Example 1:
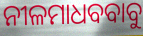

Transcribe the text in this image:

ନୀଳମାଧବବାବୁ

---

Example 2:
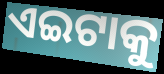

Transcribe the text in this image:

ଏଇଟାକୁ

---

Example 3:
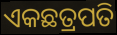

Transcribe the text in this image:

ଏକଛତ୍ରପତି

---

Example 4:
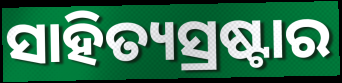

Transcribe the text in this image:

ସାହିତ୍ୟସ୍ରଷ୍ଟାର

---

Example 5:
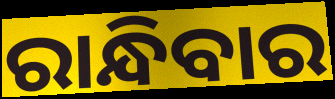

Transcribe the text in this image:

ରାନ୍ଧିବାର